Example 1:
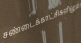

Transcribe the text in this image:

சண்டைக்காட்சிகளிலும்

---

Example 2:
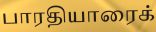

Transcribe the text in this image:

பாரதியாரைக்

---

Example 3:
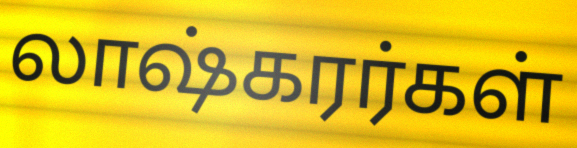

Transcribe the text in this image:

லாஷ்கரர்கள்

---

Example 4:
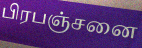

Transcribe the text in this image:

பிரபஞ்சனை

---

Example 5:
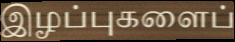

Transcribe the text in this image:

இழப்புகளைப்